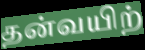
தன்வயிற்